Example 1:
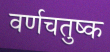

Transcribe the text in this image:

वर्णचतुष्क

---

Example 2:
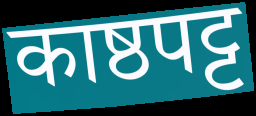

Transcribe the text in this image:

काष्ठपट्ट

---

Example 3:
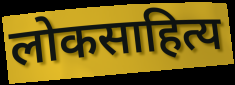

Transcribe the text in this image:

लोकसाहित्य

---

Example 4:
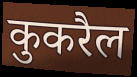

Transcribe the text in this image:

कुकरैल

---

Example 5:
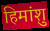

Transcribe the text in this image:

हिमांशु